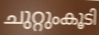
ചുറ്റുംകൂടി